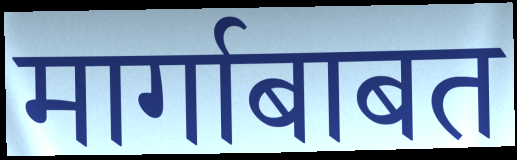
मार्गाबाबत